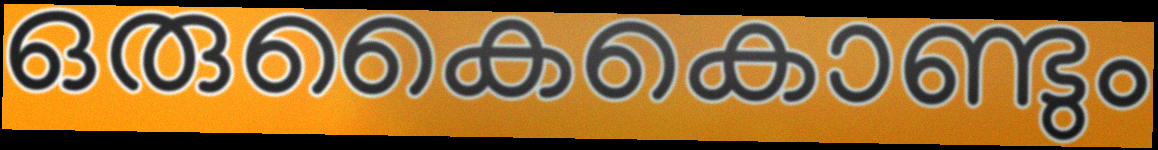
ഒരുകൈകൊണ്ടും